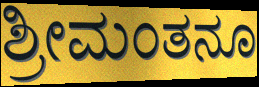
ಶ್ರೀಮಂತನೂ